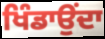
ਖਿੰਡਾਉਂਦਾ